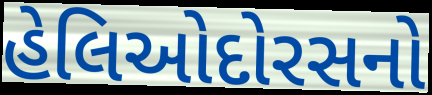
હેલિઓદોરસનો